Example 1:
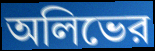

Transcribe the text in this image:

অলিভের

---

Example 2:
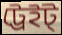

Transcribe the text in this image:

ট্রেইট্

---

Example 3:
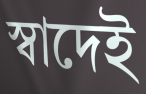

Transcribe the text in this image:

স্বাদেই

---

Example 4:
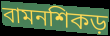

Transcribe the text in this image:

বামনশিকড়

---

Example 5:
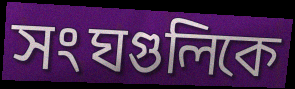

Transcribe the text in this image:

সংঘগুলিকে